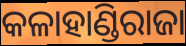
କଳାହାଣ୍ଡିରାଜା